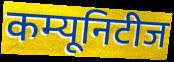
कम्यूनिटीज